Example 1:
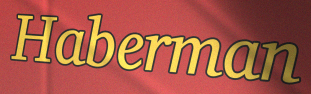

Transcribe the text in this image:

Haberman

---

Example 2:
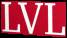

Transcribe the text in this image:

LVL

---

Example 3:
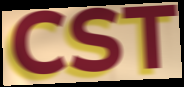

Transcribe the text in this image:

CST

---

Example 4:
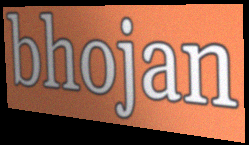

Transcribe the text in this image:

bhojan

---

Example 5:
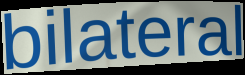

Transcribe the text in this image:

bilateral